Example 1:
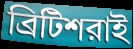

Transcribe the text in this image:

ব্রিটিশরাই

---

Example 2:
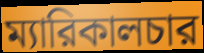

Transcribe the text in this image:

ম্যারিকালচার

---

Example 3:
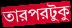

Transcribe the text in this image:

তারপরটুকু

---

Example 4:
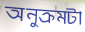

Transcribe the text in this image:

অনুক্রমটা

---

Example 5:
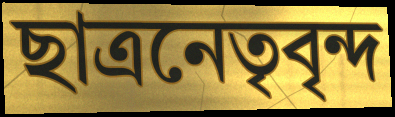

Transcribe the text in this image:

ছাত্রনেতৃবৃন্দ